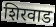
शिरवाड